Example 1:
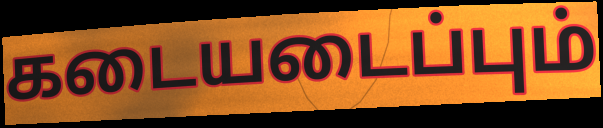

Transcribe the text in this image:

கடையடைப்பும்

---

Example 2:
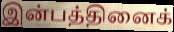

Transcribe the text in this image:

இன்பத்தினைக்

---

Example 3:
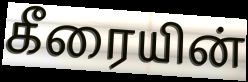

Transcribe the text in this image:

கீரையின்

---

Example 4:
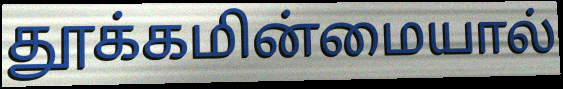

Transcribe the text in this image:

தூக்கமின்மையால்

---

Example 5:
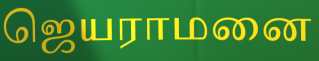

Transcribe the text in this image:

ஜெயராமனை